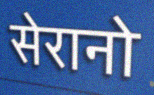
सेरानो